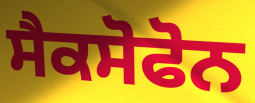
ਸੈਕਸੋਫੋਨ